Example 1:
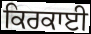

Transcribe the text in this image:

ਕਿਰਕਾਈ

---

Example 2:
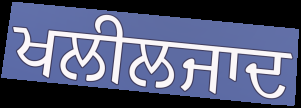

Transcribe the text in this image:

ਖਲੀਲਜਾਦ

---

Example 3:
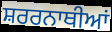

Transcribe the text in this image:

ਸ਼ਰਰਨਾਥੀਆਂ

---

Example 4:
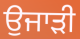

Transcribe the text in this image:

ਉਜਾੜੀ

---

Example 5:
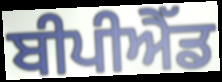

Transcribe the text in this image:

ਬੀਪੀਐੱਡ